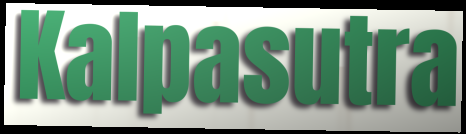
Kalpasutra